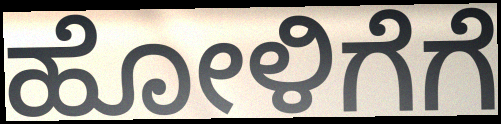
ಹೋಳಿಗೆಗೆ